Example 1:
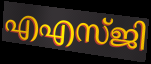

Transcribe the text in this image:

എഎസ്ജി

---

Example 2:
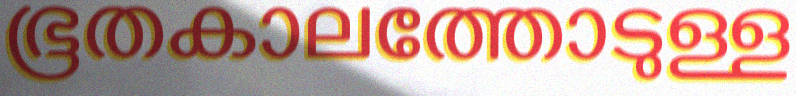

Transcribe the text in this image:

ഭൂതകാലത്തോടുള്ള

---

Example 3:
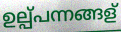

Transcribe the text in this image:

ഉല്പ്പന്നങ്ങള്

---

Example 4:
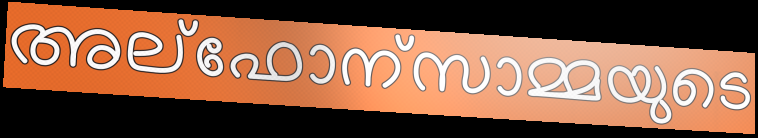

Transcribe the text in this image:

അല്ഫോന്സാമ്മയുടെ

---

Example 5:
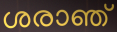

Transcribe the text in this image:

ശരാഞ്